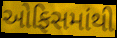
ઓફિસમાંથી